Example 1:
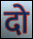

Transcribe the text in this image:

दो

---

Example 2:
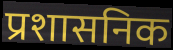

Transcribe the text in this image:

प्रशासनिक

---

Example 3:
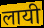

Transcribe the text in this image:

लायी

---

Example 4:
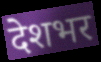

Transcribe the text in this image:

देशभर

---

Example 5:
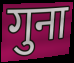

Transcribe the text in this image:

गुना